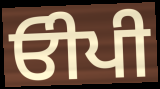
ਓੀਪੀ